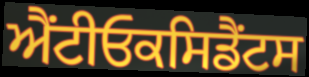
ਐਂਟੀਓਕਸਿਡੈਂਟਸ